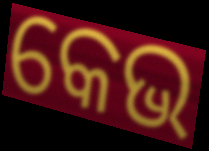
କେଭ